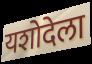
यशोदेला